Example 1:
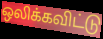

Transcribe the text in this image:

ஒலிக்கவிட்டு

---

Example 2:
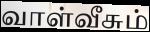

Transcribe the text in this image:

வாள்வீசும்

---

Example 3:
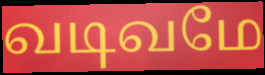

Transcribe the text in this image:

வடிவமே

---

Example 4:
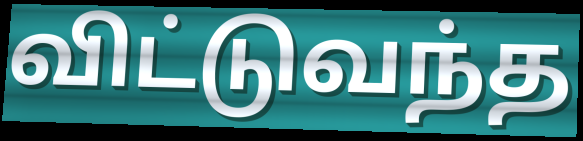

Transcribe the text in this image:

விட்டுவந்த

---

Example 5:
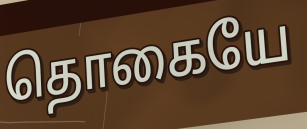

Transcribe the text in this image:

தொகையே